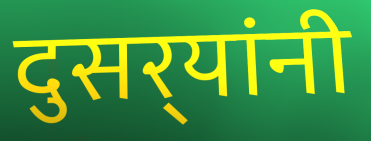
दुसर्‍यांनी